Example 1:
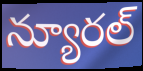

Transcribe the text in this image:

న్యూరల్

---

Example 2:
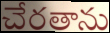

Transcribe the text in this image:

చేరతాను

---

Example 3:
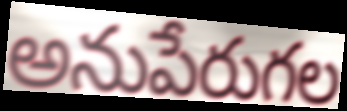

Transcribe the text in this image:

అనుపేరుగల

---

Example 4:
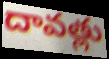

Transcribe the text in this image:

దావత్లు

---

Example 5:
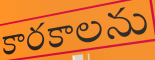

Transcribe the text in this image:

కారకాలను